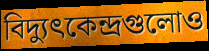
বিদ্যুৎকেন্দ্রগুলোও